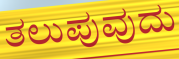
ತಲುಪುವುದು